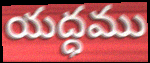
యద్ధము